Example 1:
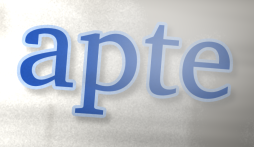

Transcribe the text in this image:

apte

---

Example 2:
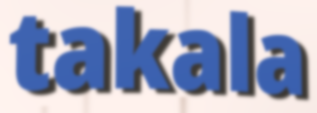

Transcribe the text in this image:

takala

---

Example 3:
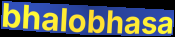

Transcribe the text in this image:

bhalobhasa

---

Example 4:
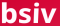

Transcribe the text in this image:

bsiv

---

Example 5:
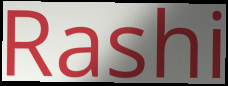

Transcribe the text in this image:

Rashi